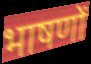
भाषणों